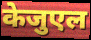
केजुएल